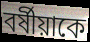
বর্ষীয়াকে